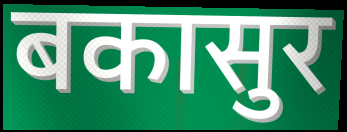
बकासुर